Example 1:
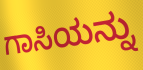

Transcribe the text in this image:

ಗಾಸಿಯನ್ನು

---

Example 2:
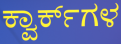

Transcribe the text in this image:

ಕ್ವಾರ್ಕ್‌ಗಳ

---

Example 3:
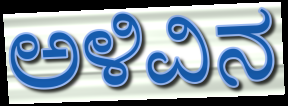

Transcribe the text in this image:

ಅಳಿವಿನ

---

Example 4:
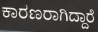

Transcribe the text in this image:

ಕಾರಣರಾಗಿದ್ದಾರೆ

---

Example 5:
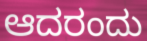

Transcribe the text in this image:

ಆದರಂದು